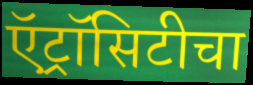
ऍट्रॉसिटीचा